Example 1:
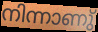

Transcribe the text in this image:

നിന്നാണു്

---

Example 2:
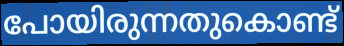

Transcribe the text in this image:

പോയിരുന്നതുകൊണ്ട്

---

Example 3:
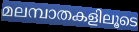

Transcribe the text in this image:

മലമ്പാതകളിലൂടെ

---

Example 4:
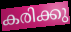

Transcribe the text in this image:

കരിക്കു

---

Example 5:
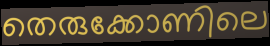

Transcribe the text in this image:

തെരുക്കോണിലെ